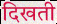
दिखती